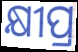
କ୍ଷୀପ୍ର